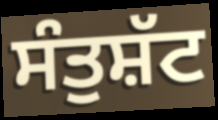
ਸੰਤੁਸ਼ੱਟ